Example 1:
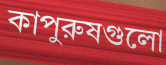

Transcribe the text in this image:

কাপুরুষগুলো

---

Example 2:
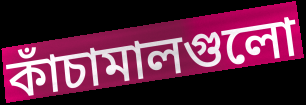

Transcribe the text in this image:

কাঁচামালগুলো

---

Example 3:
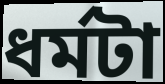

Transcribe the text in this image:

ধর্মটা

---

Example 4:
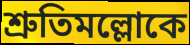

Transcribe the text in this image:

শ্রুতিমল্লোকে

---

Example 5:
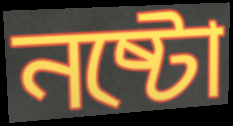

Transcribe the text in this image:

নষ্টো